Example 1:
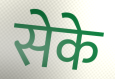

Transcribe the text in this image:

सेके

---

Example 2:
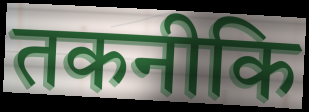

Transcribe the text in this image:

तकनीकि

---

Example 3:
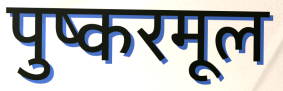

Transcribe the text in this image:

पुष्करमूल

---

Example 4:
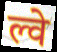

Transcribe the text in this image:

ल्वे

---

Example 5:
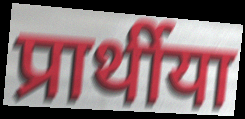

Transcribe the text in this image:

प्रार्थीया